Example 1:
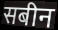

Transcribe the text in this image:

सबीन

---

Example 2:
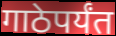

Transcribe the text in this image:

गाठेपर्यंत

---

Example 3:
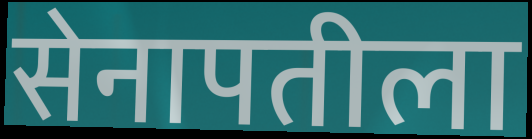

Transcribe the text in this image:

सेनापतीला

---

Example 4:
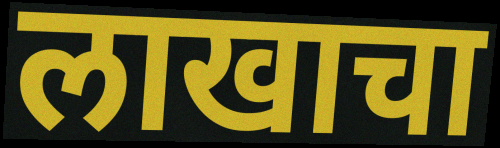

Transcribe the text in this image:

लाखाचा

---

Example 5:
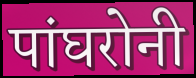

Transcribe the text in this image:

पांघरोनी